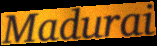
Madurai